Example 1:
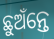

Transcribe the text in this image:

ଛୁଅଁନ୍ତେ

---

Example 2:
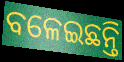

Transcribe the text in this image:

ବଳେଇଛନ୍ତି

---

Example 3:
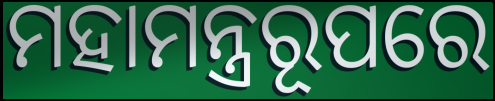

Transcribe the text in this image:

ମହାମନ୍ତ୍ରରୂପରେ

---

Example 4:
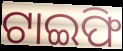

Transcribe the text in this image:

ଟାଇଫି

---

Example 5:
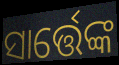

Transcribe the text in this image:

ସାର୍ତ୍ତେଙ୍କ